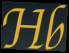
Hb